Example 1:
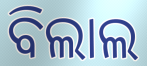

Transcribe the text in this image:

ବିଲାଲ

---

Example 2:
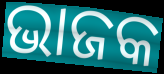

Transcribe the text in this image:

ଭାଜକ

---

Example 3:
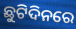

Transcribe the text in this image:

ଛୁଟିଦିନରେ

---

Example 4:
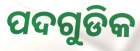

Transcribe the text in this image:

ପଦଗୁଡିକ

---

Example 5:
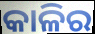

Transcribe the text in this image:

କାଳିର